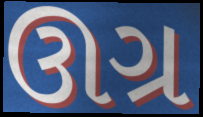
ઊગ્ર